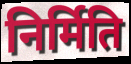
निर्मिति